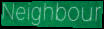
Neighbour